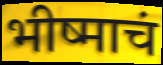
भीष्माचं